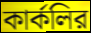
কার্কলির